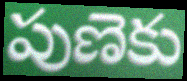
పుణెకు